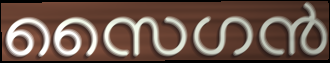
സൈഗൻ